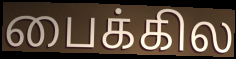
பைக்கில